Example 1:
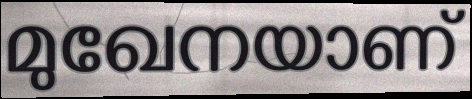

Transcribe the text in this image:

മുഖേനയാണ്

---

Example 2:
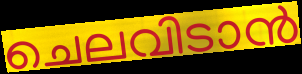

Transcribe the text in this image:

ചെലവിടാൻ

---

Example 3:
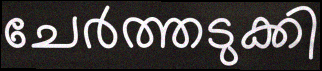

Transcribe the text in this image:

ചേർത്തടുക്കി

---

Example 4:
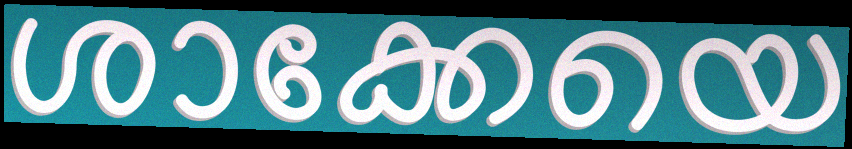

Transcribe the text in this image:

ശാക്കേയെ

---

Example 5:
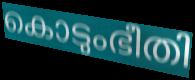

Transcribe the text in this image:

കൊടുംഭീതി